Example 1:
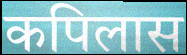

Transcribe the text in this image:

कपिलास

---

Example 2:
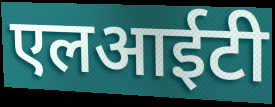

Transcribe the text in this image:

एलआईटी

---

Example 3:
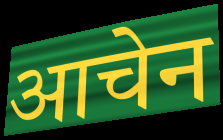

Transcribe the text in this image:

आचेन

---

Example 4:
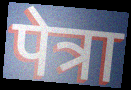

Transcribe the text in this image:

पेत्रा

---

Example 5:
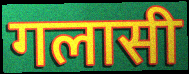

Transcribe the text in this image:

गलासी